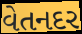
વેતનદર